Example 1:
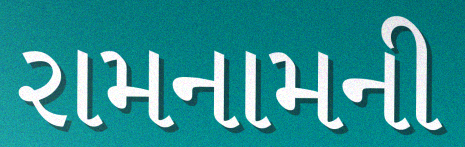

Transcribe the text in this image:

રામનામની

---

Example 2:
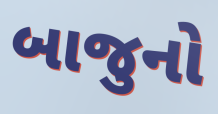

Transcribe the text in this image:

બાજુનો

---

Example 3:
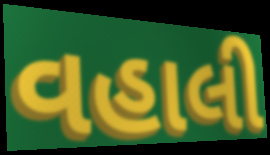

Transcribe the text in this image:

વહાલી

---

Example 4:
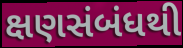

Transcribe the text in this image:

ક્ષણસંબંધથી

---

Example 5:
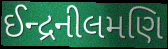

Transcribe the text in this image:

ઈન્દ્રનીલમણિ